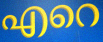
എറെ